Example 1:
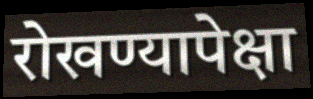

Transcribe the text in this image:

रोखण्यापेक्षा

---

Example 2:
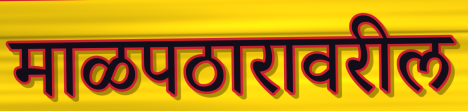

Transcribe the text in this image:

माळपठारावरील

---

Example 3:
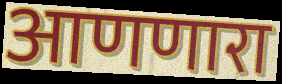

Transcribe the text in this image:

आणणारा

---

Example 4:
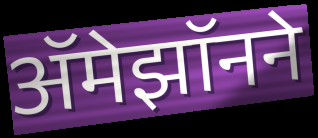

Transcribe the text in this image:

ॲमेझॉनने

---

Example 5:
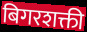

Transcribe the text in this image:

बिगरशक्ती